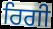
ਰਿਗੀ